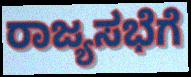
ರಾಜ್ಯಸಭೆಗೆ